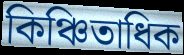
কিঞ্চিতাধিক